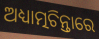
ଅଧ୍ୟାତ୍ମଚିନ୍ତାରେ